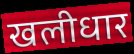
खलीधार